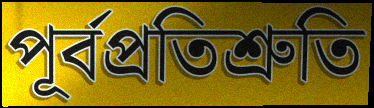
পূর্বপ্রতিশ্রুতি